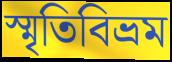
স্মৃতিবিভ্রম